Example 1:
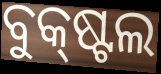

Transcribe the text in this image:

ବୁକ୍‌ଷ୍ଟଲ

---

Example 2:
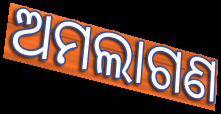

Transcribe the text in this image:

ଅମଲାଗଣ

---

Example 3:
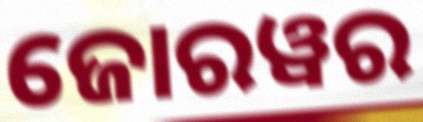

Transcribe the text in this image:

ଜୋରୱର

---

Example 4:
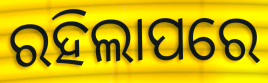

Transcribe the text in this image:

ରହିଲାପରେ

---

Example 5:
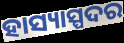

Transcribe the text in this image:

ହାସ୍ୟାସ୍ପଦର